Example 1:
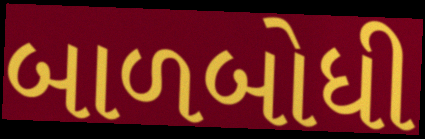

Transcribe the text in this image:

બાળબોધી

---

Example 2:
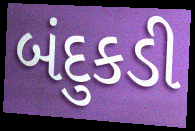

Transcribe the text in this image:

બંદુકડી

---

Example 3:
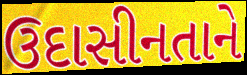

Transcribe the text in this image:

ઉદાસીનતાને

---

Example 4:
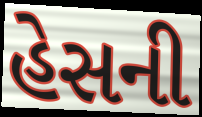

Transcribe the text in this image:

હેસની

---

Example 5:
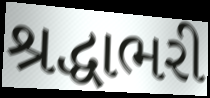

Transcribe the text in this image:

શ્રદ્ધાભરી